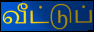
வீட்டுப்